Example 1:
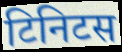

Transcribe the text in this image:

टिनिटस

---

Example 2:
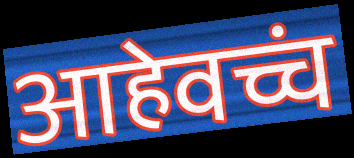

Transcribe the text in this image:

आहेवच्चं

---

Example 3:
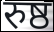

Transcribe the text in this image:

रुष्ठ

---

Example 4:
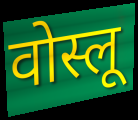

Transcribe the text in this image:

वोस्लू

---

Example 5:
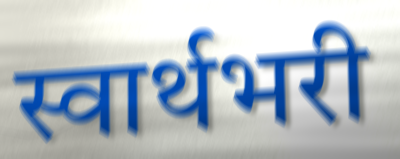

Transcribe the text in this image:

स्वार्थभरी